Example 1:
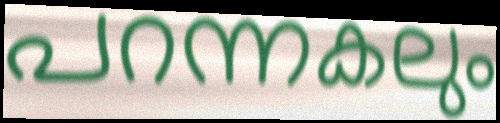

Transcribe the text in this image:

പറന്നകലും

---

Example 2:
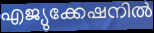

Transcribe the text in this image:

എജ്യുക്കേഷനിൽ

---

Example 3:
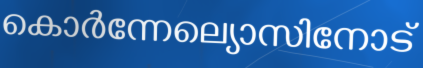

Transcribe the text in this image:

കൊർന്നേല്യൊസിനോട്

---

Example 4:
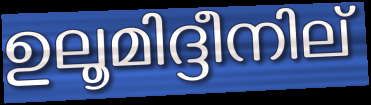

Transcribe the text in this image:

ഉലൂമിദ്ദീനില്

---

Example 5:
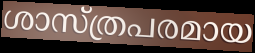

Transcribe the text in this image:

ശാസ്ത്രപരമായ